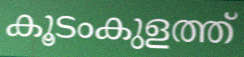
കൂടംകുളത്ത്